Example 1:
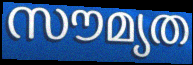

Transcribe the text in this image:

സൗമ്യത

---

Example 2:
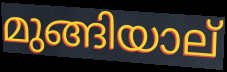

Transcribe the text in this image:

മുങ്ങിയാല്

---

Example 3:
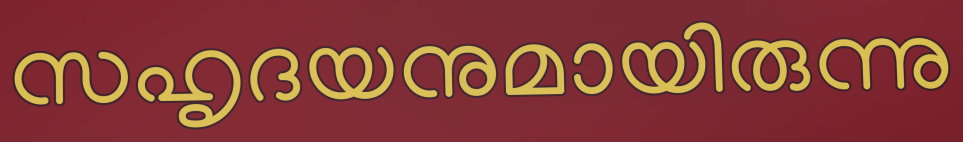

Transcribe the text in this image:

സഹൃദയനുമായിരുന്നു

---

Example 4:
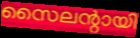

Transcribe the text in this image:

സൈലന്റായി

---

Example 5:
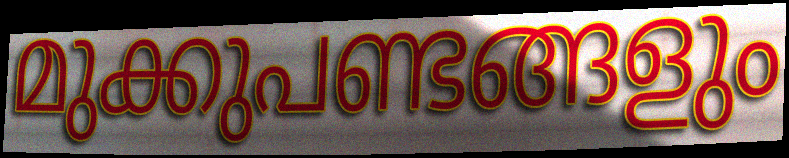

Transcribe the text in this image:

മുക്കുപണ്ടങ്ങളും